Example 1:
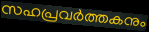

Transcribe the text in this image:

സഹപ്രവർത്തകനും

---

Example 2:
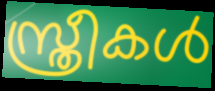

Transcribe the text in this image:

സ്ത്രീകൾ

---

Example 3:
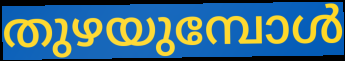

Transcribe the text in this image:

തുഴയുമ്പോൾ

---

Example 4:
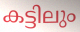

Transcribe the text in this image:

കട്ടിലും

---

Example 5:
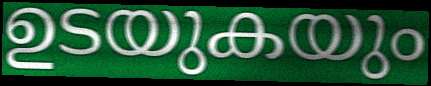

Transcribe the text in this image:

ഉടയുകയും